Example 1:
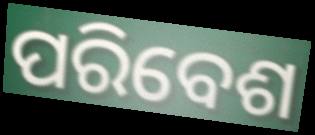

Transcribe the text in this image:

ପରିବେଶ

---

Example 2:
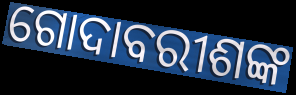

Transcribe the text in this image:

ଗୋଦାବରୀଶଙ୍କ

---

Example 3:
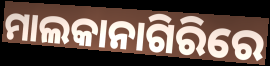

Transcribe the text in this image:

ମାଲକାନାଗିରିରେ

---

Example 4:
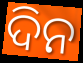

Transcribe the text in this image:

ଦିନ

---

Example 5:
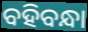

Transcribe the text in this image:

ବହିବନ୍ଧା